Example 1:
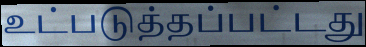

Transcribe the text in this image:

உட்படுத்தப்பட்டது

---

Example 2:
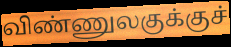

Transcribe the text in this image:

விண்ணுலகுக்குச்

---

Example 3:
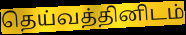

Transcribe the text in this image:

தெய்வத்தினிடம்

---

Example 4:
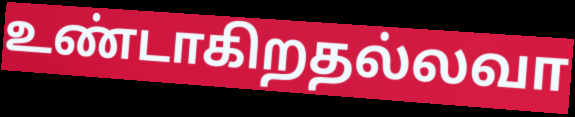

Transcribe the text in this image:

உண்டாகிறதல்லவா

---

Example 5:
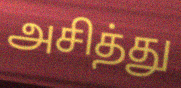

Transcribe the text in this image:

அசித்து